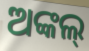
ଅଙ୍କଲ୍